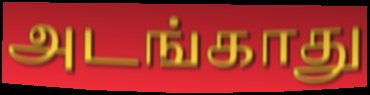
அடங்காது